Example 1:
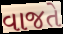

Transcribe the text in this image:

વાજતે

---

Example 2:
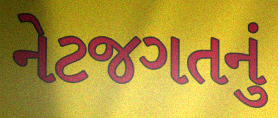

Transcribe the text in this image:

નેટજગતનું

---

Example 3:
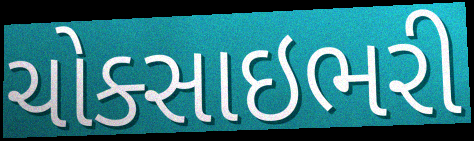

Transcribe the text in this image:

ચોક્સાઇભરી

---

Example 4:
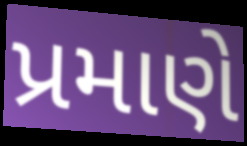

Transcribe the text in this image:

પ્રમાણે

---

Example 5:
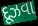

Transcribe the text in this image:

દૂઝવા